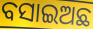
ବସାଇଅଛ